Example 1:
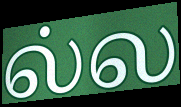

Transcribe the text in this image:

ல்ல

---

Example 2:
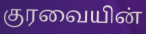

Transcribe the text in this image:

குரவையின்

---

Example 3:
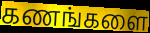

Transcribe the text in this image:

கணங்களை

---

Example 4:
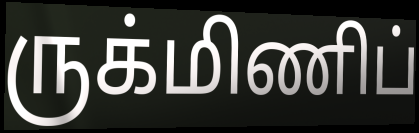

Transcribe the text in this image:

ருக்மிணிப்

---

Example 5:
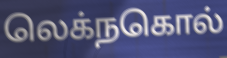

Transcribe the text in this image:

லெக்நகொல்